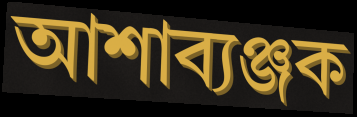
আশাব্যঞ্জক